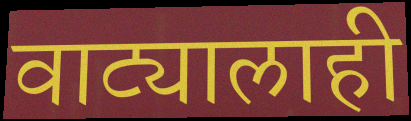
वाट्यालाही